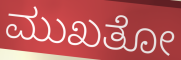
ಮುಖತೋ